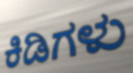
ಕಿಡಿಗಳು